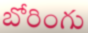
బోరింగు